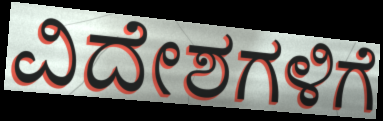
ವಿದೇಶಗಳಿಗೆ